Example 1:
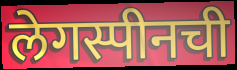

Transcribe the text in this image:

लेगस्पीनची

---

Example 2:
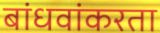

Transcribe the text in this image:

बांधवांकरता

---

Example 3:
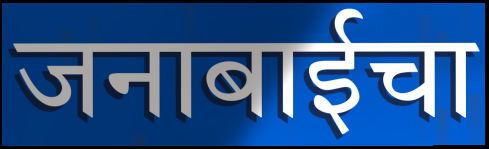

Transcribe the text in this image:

जनाबाईचा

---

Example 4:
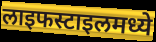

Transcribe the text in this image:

लाइफस्टाइलमध्ये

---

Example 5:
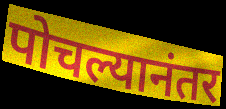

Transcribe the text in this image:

पोचल्यानंतर